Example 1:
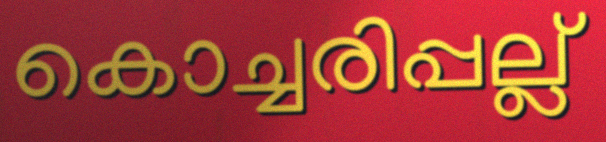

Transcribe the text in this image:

കൊച്ചരിപ്പല്ല്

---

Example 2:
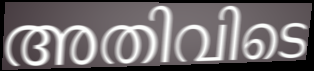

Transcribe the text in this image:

അതിവിടെ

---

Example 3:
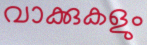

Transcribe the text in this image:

വാക്കുകളും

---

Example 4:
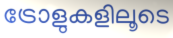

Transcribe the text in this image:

ട്രോളുകളിലൂടെ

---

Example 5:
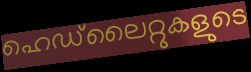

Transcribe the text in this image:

ഹെഡ്‌ലൈറ്റുകളുടെ